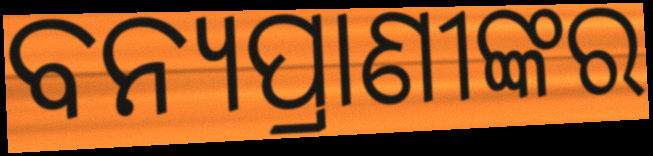
ବନ୍ୟପ୍ରାଣୀଙ୍କର